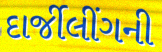
દાર્જીલીંગની